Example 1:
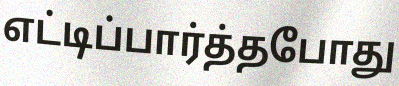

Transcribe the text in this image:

எட்டிப்பார்த்தபோது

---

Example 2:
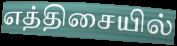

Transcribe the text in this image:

எத்திசையில்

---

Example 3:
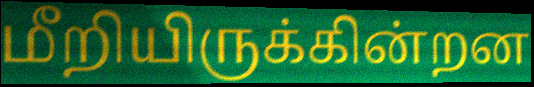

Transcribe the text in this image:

மீறியிருக்கின்றன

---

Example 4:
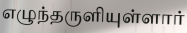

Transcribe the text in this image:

எழுந்தருளியுள்ளார்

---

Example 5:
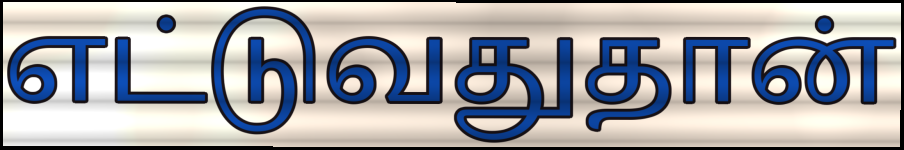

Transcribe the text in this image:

எட்டுவதுதான்